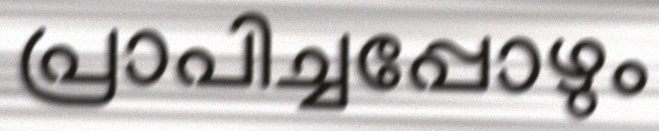
പ്രാപിച്ചപ്പോഴും